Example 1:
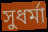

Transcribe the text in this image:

সুধর্মা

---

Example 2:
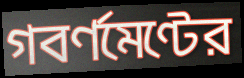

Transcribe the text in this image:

গবর্ণমেণ্টের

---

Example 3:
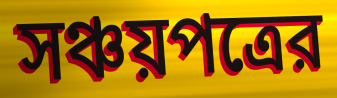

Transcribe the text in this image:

সঞ্চয়পত্রের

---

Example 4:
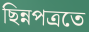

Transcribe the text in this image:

ছিন্নপত্রতে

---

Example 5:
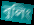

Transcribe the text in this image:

বুলিং